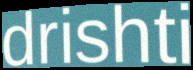
drishti